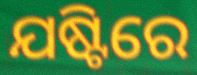
ଯଷ୍ଟିରେ